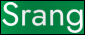
Srang